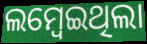
ଲମ୍ବେଇଥିଲା